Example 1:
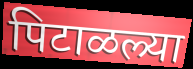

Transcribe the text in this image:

पिटाळल्या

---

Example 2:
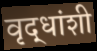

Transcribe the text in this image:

वृद्धांशी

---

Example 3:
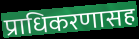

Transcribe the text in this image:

प्राधिकरणासह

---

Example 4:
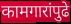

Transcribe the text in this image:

कामगारांपुढे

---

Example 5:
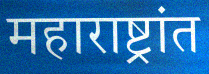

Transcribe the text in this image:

महाराष्ट्रांत